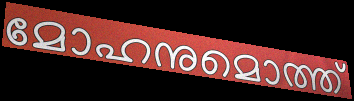
മോഹനുമൊത്ത്